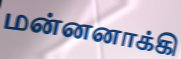
மன்னனாக்கி